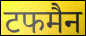
टफमैन